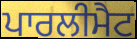
ਪਾਰਲੀਮੈਟ